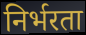
निर्भरता